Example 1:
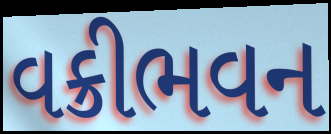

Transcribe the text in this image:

વક્રીભવન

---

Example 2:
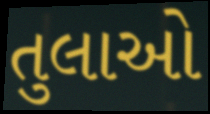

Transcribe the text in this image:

તુલાઓ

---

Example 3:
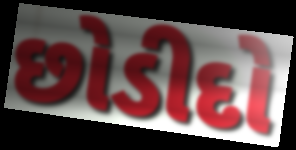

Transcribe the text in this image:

છોડીદો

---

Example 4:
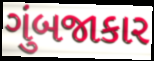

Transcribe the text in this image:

ગુંબજાકાર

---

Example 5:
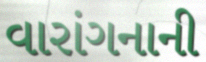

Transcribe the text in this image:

વારાંગનાની